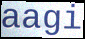
aagi